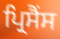
ਪ੍ਰਿਸੈਂਸ